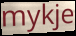
mykje